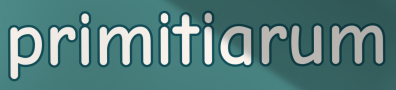
primitiarum